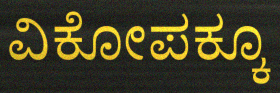
ವಿಕೋಪಕ್ಕೂ